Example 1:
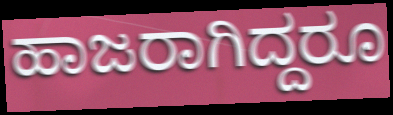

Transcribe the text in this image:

ಹಾಜರಾಗಿದ್ದರೂ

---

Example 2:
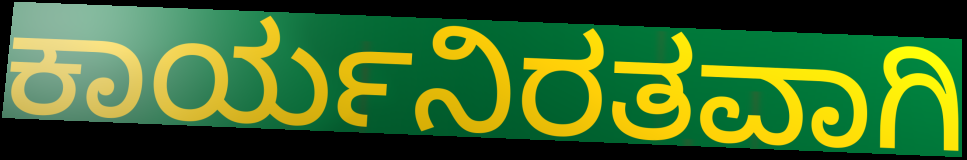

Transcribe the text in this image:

ಕಾರ್ಯನಿರತವಾಗಿ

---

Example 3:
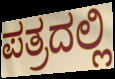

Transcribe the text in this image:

ಪತ್ರದಲ್ಲಿ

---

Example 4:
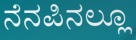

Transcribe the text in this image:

ನೆನಪಿನಲ್ಲೂ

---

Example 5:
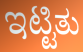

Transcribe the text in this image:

ಇಟ್ಟಿತು